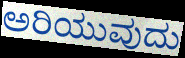
ಅರಿಯುವುದು